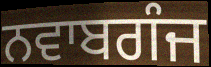
ਨਵਾਬਗੰਜ